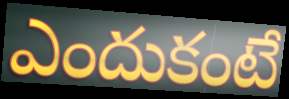
ఎందుకంటే